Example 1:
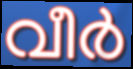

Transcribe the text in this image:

വീർ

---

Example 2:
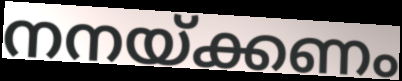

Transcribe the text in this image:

നനയ്ക്കണം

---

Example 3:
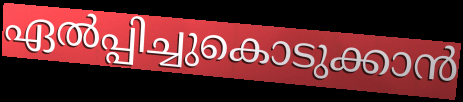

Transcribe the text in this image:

ഏൽപ്പിച്ചുകൊടുക്കാൻ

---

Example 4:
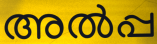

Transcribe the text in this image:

അൽപ്പ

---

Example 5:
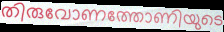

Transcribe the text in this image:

തിരുവോണത്തോണിയുടെ